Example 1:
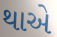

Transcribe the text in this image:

થાએ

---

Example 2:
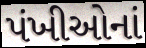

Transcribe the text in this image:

પંખીઓનાં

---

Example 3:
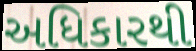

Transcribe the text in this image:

અધિકારથી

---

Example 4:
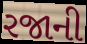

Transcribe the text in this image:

રજાની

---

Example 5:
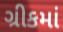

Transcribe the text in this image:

ગ્રીકમાં